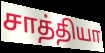
சாத்தியா